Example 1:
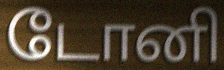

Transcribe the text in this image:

டோனி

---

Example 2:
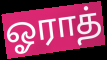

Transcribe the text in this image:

ஓராத்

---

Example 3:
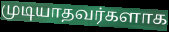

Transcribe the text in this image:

முடியாதவர்களாக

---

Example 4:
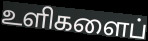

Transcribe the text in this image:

உளிகளைப்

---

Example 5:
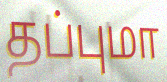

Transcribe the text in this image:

தப்புமா